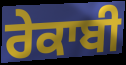
ਰੇਕਾਬੀ